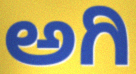
ಅಗಿ